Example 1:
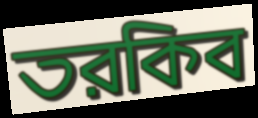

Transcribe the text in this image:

তরকিব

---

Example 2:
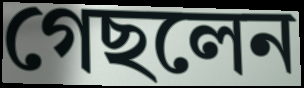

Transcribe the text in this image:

গেছলেন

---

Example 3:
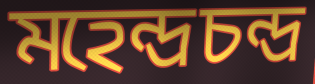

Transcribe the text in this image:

মহেন্দ্রচন্দ্র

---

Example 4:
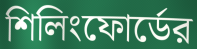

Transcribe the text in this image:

শিলিংফোর্ডের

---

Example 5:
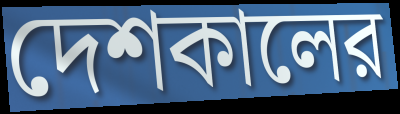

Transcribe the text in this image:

দেশকালের